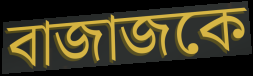
বাজাজকে